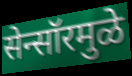
सेन्सॉरमुळे